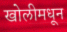
खोलीमधून